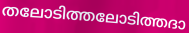
തലോടിത്തലോടിത്തദാ